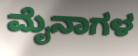
ಮೈನಾಗಳ